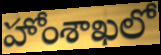
హోంశాఖలో